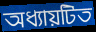
অধ্যায়টিত